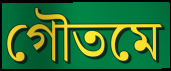
গৌতমে